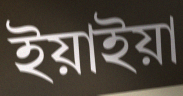
ইয়াইয়া